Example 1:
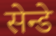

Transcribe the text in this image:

सेन्डे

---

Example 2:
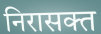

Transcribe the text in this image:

निरासक्त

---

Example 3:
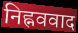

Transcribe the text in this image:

निह्नववाद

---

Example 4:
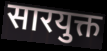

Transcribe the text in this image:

सारयुक्त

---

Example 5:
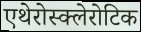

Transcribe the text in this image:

एथेरोस्क्लेरोटिक